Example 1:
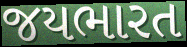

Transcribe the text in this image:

જયભારત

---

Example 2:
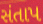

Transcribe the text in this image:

સંતાપ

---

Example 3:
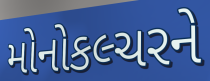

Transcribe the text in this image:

મોનોકલ્ચરને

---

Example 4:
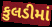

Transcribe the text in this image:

કુલડીમાં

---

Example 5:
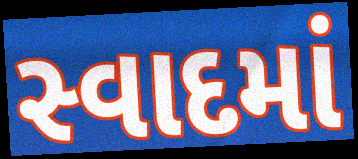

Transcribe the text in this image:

સ્વાદમાં